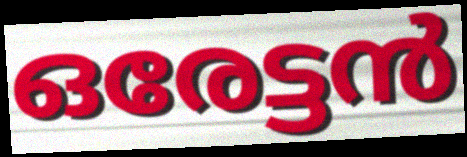
ഒരേട്ടൻ